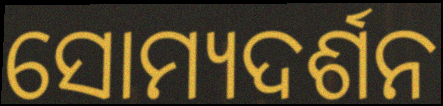
ସୋମ୍ଯଦର୍ଶନ